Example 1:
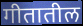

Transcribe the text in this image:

गीतातील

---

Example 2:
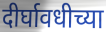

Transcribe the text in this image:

दीर्घावधीच्या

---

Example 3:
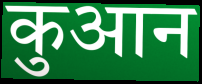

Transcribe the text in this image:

कुआन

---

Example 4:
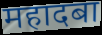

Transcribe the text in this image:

महादबा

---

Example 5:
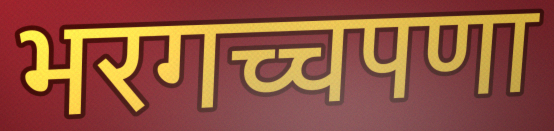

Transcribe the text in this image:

भरगच्चपणा